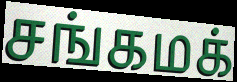
சங்கமக்